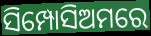
ସିମ୍ପୋସିଅମରେ